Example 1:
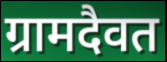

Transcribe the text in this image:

ग्रामदैवत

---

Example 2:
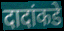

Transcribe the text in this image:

दादांकडे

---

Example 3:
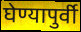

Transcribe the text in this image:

घेण्यापुर्वी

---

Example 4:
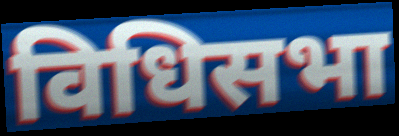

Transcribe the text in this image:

विधिसभा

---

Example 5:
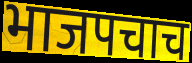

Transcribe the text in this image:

भाजपचाच